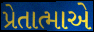
પ્રેતાત્માએ